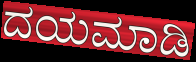
ದಯಮಾಡಿ